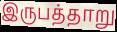
இருபத்தாறு